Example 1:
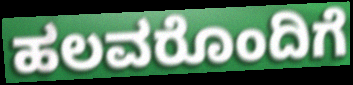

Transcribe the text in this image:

ಹಲವರೊಂದಿಗೆ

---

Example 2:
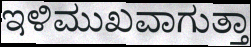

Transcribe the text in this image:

ಇಳಿಮುಖವಾಗುತ್ತಾ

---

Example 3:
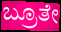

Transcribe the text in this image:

ಬ್ರೂತೇ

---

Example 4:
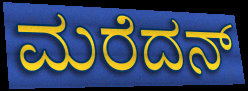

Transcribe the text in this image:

ಮರೆದನ್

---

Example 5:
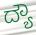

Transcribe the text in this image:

ದ್ಯೌ